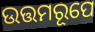
ଉତ୍ତମରୂପେ